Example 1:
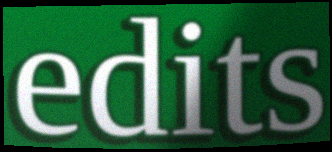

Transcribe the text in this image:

edits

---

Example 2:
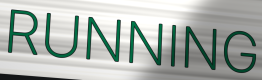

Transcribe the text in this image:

RUNNING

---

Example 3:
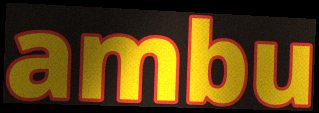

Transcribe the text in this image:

ambu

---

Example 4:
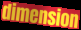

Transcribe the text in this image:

dimension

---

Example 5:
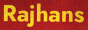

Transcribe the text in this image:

Rajhans